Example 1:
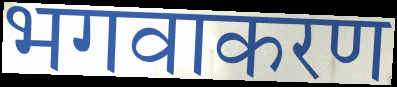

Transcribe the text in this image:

भगवाकरण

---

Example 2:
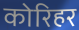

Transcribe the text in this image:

कोरिहर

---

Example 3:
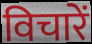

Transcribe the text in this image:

विचारें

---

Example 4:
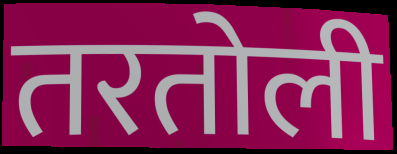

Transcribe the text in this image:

तरतोली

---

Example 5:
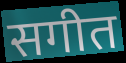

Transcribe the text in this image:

सगीत